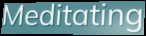
Meditating